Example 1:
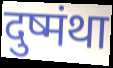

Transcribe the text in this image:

दुष्मंथा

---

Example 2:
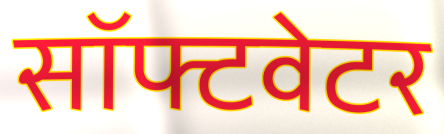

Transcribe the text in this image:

सॉफ्टवेटर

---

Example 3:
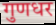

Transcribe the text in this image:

गुणधर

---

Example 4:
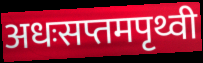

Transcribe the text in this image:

अधःसप्तमपृथ्वी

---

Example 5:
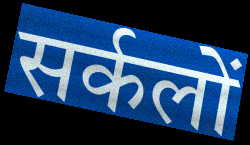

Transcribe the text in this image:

सर्कलों